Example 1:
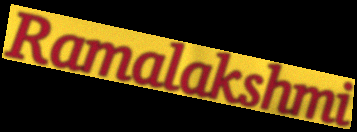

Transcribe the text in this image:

Ramalakshmi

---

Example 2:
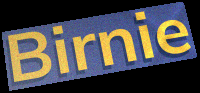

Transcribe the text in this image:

Birnie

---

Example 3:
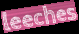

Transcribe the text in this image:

leeches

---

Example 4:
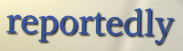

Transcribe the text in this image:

reportedly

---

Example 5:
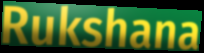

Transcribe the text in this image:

Rukshana